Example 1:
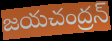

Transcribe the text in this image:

జయచంద్రన్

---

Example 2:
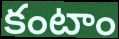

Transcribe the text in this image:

కంటాం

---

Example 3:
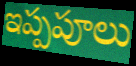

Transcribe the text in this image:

ఇప్పపూలు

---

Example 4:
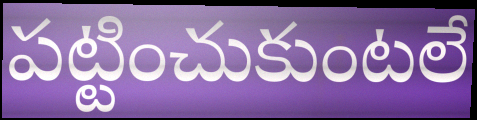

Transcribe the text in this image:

పట్టించుకుంటలే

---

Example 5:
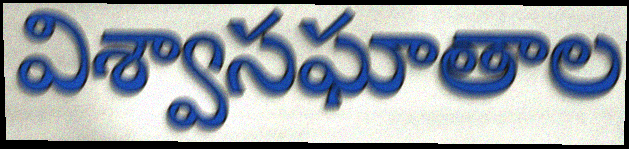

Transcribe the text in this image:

విశ్వాసఘాతాల